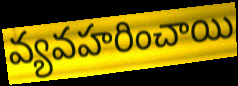
వ్యవహరించాయి